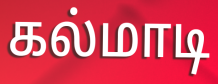
கல்மாடி